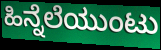
ಹಿನ್ನೆಲೆಯುಂಟು